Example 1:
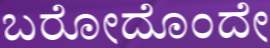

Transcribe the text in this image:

ಬರೋದೊಂದೇ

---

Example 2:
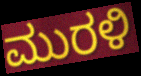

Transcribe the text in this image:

ಮುರಳಿ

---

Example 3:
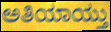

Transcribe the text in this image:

ಅತಿಯಾಯ್ತು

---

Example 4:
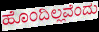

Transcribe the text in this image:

ಹೊಂದಿಲ್ಲವೆಂದು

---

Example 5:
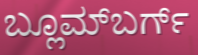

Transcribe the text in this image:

ಬ್ಲೂಮ್‌ಬರ್ಗ್